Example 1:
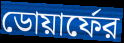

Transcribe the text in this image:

ডোয়ার্ফের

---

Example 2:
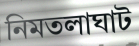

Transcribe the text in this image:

নিমতলাঘাট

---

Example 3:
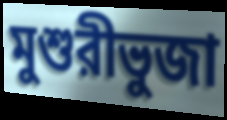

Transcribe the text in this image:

মুশুরীভুজা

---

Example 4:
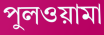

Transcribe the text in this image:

পুলওয়ামা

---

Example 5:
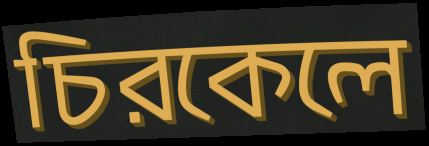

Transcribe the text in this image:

চিরকেলে